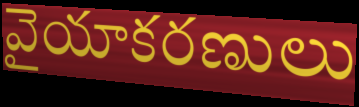
వైయాకరణులు